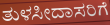
ತುಳಸೀದಾಸರಿಗೆ